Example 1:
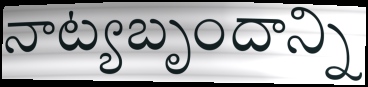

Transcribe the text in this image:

నాట్యబృందాన్ని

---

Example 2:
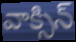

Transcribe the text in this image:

వాక్సిన్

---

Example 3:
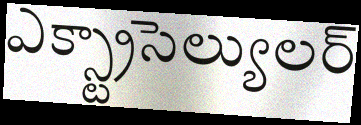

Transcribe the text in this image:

ఎక్స్ట్రాసెల్యులర్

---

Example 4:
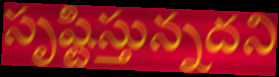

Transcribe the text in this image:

సృష్టిస్తున్నదని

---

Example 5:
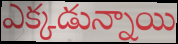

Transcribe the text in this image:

ఎక్కడున్నాయి